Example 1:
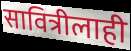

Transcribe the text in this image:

सावित्रीलाही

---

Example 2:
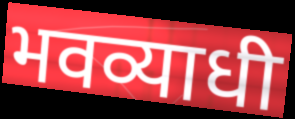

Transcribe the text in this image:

भवव्याधी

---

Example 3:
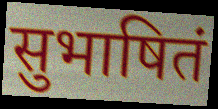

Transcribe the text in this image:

सुभाषितं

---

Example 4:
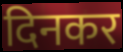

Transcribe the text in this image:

दिनकर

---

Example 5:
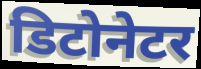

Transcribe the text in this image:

डिटोनेटर